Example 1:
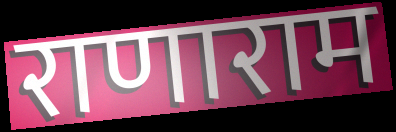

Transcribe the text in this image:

राणाराम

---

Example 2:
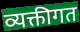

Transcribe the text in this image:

व्यक्तीगत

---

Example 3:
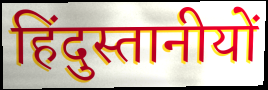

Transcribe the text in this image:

हिंदुस्तानीयों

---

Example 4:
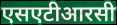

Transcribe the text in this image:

एसएटीआरसी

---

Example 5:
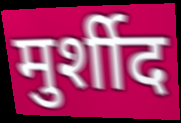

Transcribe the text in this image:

मुर्शीद